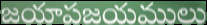
జయాపజయములు